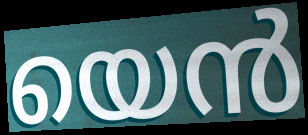
യെൻ